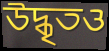
উদ্ধৃতও